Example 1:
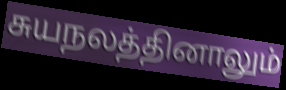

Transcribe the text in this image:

சுயநலத்தினாலும்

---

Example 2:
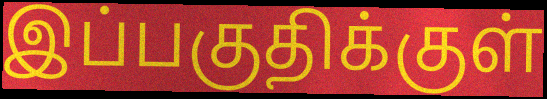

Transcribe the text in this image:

இப்பகுதிக்குள்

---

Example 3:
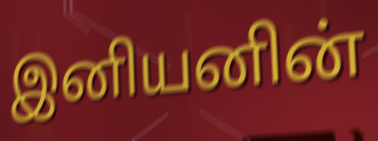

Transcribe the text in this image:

இனியனின்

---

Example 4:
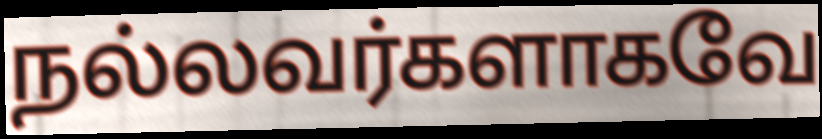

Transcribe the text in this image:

நல்லவர்களாகவே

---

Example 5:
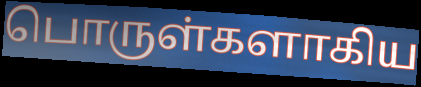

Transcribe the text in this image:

பொருள்களாகிய